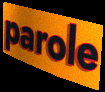
parole